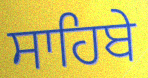
ਸਾਹਿਬੇ